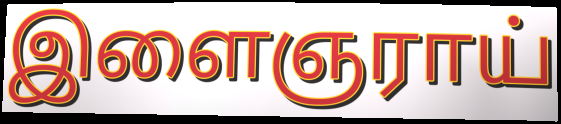
இளைஞராய்